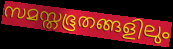
സമസ്തഭൂതങ്ങളിലും